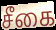
சீகை